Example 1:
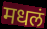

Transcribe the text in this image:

मधलं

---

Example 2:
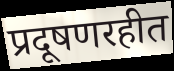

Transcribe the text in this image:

प्रदूषणरहीत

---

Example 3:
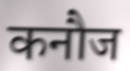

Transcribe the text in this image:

कनौज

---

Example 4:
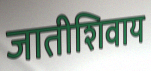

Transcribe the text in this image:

जातीशिवाय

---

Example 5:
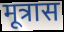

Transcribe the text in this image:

मूत्रास